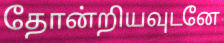
தோன்றியவுடனே